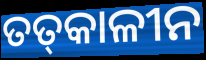
ତତ୍‍କାଳୀନ